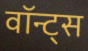
वॉन्ट्स